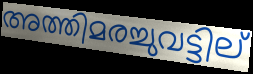
അത്തിമരച്ചുവട്ടില്